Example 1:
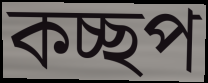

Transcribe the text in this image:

কচ্ছপ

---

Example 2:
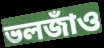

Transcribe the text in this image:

ভলজাঁও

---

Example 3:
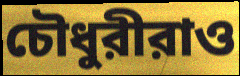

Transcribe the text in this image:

চৌধুরীরাও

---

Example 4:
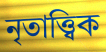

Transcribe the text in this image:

নৃতাত্ত্বিক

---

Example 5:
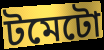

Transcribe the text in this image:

টমেটো